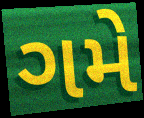
ગમે